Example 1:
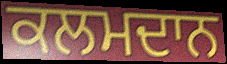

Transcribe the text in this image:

ਕਲਮਦਾਨ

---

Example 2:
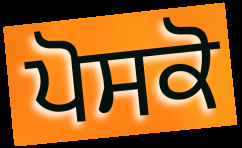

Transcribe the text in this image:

ਪੋਸਕੋ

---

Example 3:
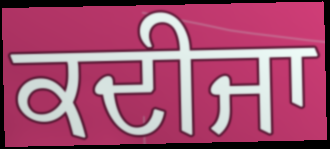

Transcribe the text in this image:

ਕਦੀਜਾ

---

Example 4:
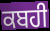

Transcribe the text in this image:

ਕਬਹੀ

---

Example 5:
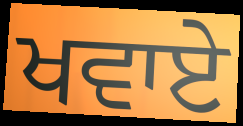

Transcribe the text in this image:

ਖਵਾਏ